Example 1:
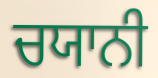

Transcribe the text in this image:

ਚਯਾਨੀ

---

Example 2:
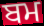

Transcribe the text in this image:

ਬਮ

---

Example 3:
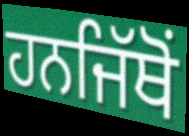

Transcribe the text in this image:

ਹਨਜਿੱਥੋਂ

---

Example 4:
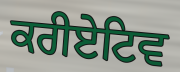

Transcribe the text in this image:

ਕਰੀਏਟਿਵ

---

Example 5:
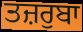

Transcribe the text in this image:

ਤਜ਼ਰੁਬਾ